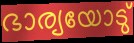
ഭാര്യയോടു്